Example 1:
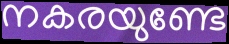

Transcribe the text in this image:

നകരയുണ്ടേ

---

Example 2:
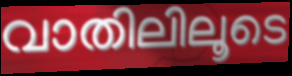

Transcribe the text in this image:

വാതിലിലൂടെ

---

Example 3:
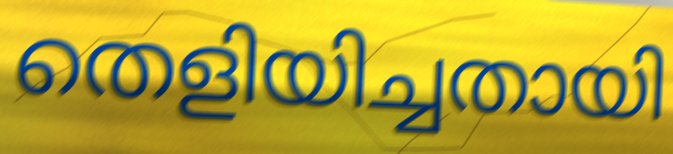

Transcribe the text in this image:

തെളിയിച്ചതായി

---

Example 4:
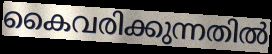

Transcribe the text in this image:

കൈവരിക്കുന്നതിൽ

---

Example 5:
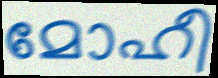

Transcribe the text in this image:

മോഹീ